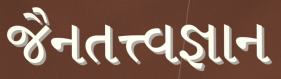
જૈનતત્ત્વજ્ઞાન